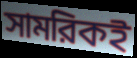
সামরিকই